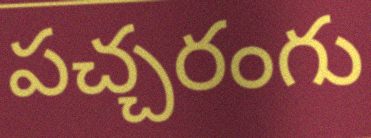
పచ్చరంగు